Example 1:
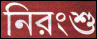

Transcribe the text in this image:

নিরংশু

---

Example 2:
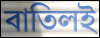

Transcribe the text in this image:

বাতিলই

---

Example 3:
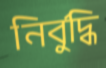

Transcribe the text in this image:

নির্বুদ্ধি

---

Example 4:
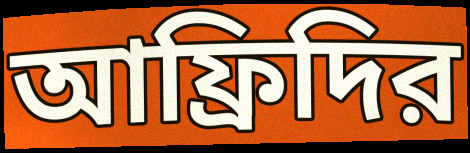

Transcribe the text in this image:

আফ্রিদির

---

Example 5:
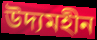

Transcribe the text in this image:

উদ্যমহীন